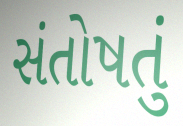
સંતોષતું